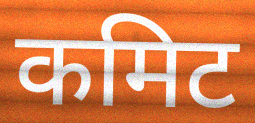
कमिट